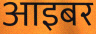
आइबर